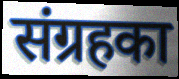
संग्रहका